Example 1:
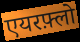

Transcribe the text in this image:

एयरफ़्लो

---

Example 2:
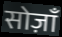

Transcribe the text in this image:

सोज़ाँ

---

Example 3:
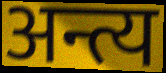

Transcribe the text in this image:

अन्त्य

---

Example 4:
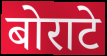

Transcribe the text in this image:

बोराटे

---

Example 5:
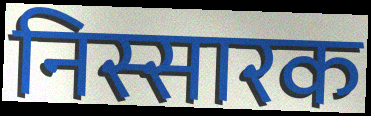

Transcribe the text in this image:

निस्सारक